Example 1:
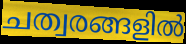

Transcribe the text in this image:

ചത്വരങ്ങളിൽ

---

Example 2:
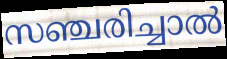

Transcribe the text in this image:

സഞ്ചരിച്ചാൽ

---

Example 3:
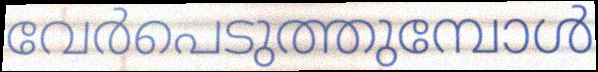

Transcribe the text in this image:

വേർപെടുത്തുമ്പോൾ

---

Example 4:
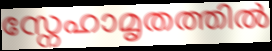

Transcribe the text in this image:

സ്നേഹാമൃതത്തിൽ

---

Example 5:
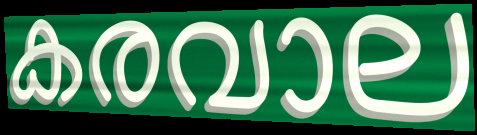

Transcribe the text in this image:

കരവാല